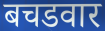
बचडवार